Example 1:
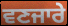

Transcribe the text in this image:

ਵਣਜਾਰੇ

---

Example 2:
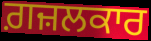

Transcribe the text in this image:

ਗ਼ਜ਼ਲਕਾਰ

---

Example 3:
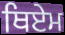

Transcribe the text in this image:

ਥਿਏਮ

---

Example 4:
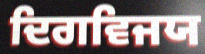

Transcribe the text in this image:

ਦਿਗਵਿਜਯ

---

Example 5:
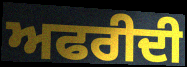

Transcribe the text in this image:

ਅਫਰੀਦੀ